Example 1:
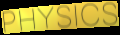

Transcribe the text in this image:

PHYSICS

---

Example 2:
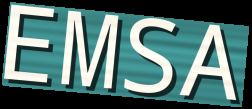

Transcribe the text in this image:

EMSA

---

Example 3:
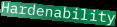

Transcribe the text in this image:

Hardenability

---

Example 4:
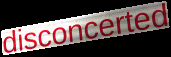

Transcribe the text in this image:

disconcerted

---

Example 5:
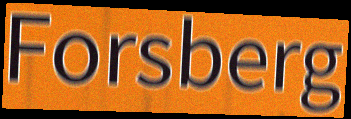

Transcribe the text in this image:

Forsberg